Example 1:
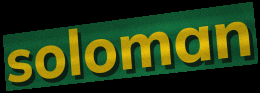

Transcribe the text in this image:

soloman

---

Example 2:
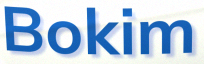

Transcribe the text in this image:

Bokim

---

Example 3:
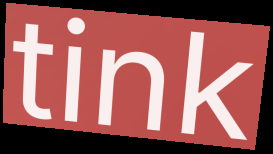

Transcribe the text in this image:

tink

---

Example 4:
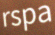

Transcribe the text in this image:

rspa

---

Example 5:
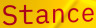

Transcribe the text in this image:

Stance